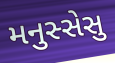
મનુસ્સેસુ